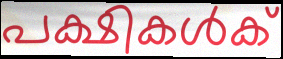
പക്ഷികൾക്